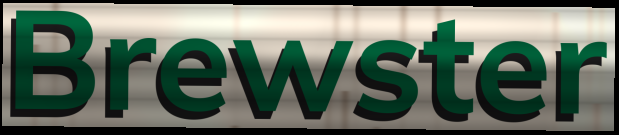
Brewster